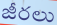
జీరలు